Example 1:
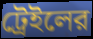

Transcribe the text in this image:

ট্রেইলের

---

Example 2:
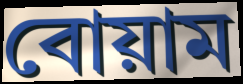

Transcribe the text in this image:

বোয়াম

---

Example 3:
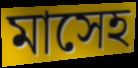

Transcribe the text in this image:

মাসেহ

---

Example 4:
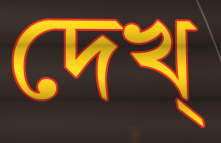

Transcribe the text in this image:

দেখ্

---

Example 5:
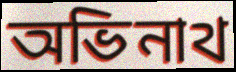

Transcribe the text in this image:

অভিনাথ